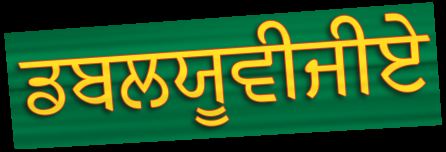
ਡਬਲਯੂਵੀਜੀਏ